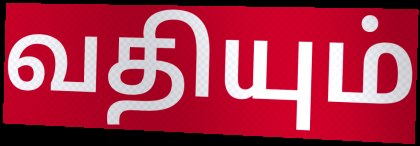
வதியும்